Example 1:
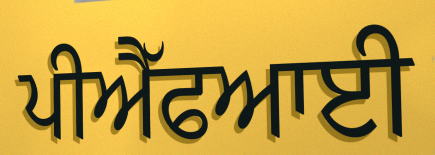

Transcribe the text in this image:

ਪੀਐੱਫਆਈ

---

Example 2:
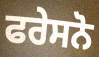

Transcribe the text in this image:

ਫਰੇਸਨੋ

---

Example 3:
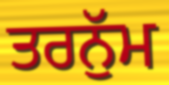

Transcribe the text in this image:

ਤਰਨੁੱਮ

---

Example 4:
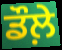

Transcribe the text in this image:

ਡੌਲ਼ੇ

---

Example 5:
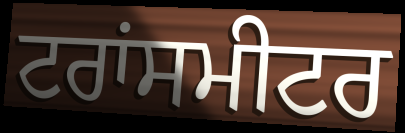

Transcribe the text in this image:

ਟਰਾਂਸਮੀਟਰ